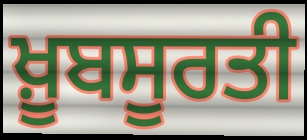
ਖ਼ੂਬਸੂਰਤੀ